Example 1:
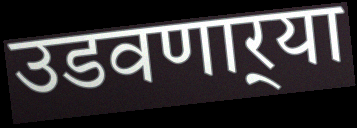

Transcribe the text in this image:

उडवणार्या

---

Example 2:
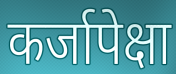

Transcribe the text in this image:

कर्जापेक्षा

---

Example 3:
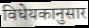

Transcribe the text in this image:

विधेयकानुसार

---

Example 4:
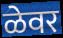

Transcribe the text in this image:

ळेवर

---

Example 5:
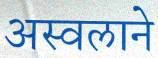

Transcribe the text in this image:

अस्वलाने